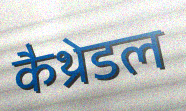
कैथ्रेडल